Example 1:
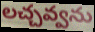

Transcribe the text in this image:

లచ్చవ్వను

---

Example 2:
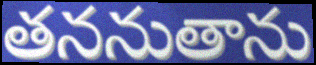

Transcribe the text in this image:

తననుతాను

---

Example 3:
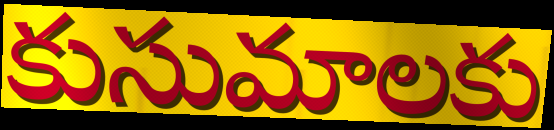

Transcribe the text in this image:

కుసుమాలకు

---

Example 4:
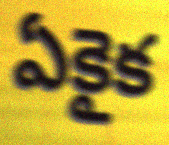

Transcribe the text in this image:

ఏకైక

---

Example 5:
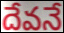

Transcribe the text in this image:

దేవనే